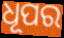
ଧୂପର